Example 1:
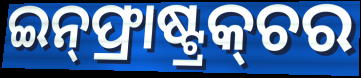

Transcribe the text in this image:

ଇନ୍‌ଫ୍ରାଷ୍ଟ୍ରକ୍‌ଚର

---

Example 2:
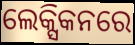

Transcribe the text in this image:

ଲେକ୍ସିକନରେ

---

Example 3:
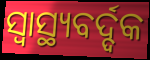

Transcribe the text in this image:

ସ୍ଵାସ୍ଥ୍ୟବର୍ଦ୍ଦକ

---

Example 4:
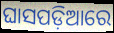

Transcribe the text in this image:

ଘାସପଡ଼ିଆରେ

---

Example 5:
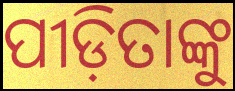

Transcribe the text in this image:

ପୀଡ଼ିତାଙ୍କୁ